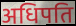
अधिपति